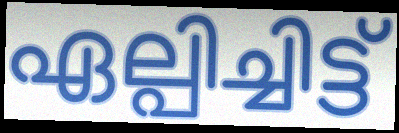
ഏല്പിച്ചിട്ട്